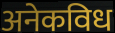
अनेकविध